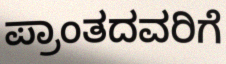
ಪ್ರಾಂತದವರಿಗೆ